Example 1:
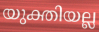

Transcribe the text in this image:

യുക്തിയല്ല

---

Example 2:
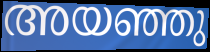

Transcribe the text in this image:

അയഞ്ഞു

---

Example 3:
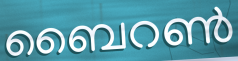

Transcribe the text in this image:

ബൈറൺ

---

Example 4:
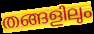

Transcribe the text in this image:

തങ്ങളിലും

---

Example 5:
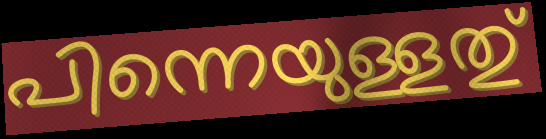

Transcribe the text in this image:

പിന്നെയുള്ളതു്